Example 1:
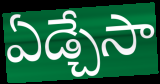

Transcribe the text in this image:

ఏడ్చేసా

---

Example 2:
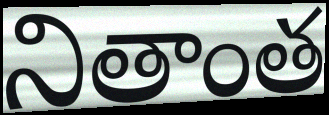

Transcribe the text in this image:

నితాంత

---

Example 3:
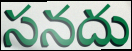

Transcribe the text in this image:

సనదు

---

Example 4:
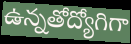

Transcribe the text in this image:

ఉన్నతోద్యోగిగా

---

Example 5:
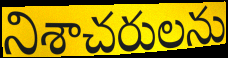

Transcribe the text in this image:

నిశాచరులను